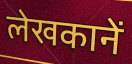
लेखकानें